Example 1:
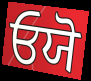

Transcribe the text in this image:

ਓਯੋ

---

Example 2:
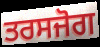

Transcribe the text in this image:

ਤਰਸਜੋਗ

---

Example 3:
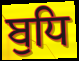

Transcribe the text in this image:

ਬੁਧਿ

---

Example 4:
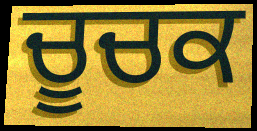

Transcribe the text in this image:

ਚੂਚਕ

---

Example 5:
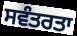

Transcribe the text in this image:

ਸਵੰਤਰਤਾ